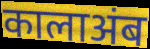
कालाअंब